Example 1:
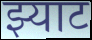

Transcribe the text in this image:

झ्याट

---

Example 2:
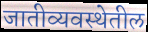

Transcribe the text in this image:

जातीव्यवस्थेतील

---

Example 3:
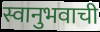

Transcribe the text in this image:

स्वानुभवाची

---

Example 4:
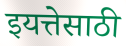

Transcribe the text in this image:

इयत्तेसाठी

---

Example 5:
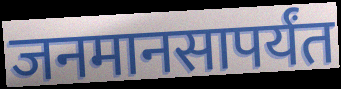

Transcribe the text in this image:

जनमानसापर्यंत